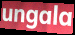
ungala